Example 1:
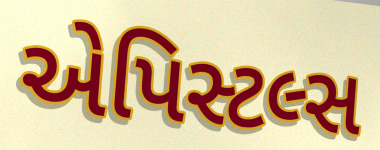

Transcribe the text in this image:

એપિસ્ટલ્સ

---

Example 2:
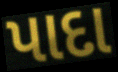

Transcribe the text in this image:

પાદા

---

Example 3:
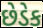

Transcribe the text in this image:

છેડેક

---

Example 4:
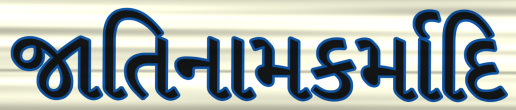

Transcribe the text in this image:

જાતિનામકર્માદિ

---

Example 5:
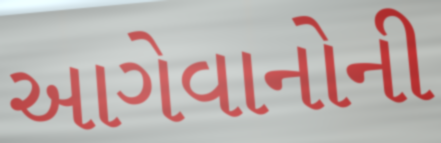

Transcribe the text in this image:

આગેવાનોની